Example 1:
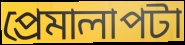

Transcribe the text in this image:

প্রেমালাপটা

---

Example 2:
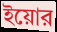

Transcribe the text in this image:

ইয়োর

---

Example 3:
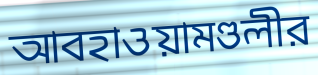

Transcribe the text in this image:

আবহাওয়ামণ্ডলীর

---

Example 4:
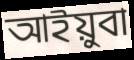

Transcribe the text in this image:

আইয়ুবা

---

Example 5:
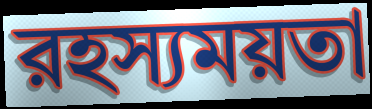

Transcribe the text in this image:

রহস্যময়তা